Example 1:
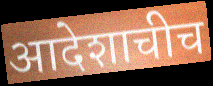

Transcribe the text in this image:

आदेशाचीच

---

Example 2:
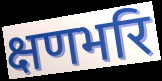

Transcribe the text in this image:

क्षणभरि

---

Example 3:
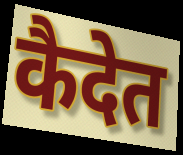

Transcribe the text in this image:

कैदेत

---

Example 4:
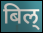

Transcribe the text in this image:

बिल्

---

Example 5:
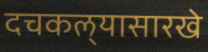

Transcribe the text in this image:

दचकल्यासारखे